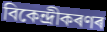
বিকেন্দ্ৰীকৰণৰ